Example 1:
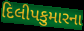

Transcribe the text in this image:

દિલીપકુમારના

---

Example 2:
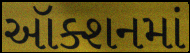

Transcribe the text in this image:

ઑક્શનમાં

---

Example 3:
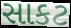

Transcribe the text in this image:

સાકટ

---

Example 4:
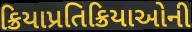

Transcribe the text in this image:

ક્રિયાપ્રતિક્રિયાઓની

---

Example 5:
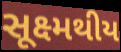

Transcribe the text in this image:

સૂક્ષ્મથીય